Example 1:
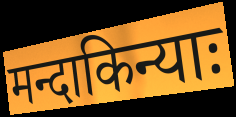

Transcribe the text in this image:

मन्दाकिन्याः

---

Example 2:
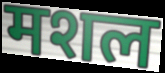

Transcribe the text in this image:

मशल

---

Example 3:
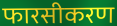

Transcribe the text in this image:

फारसीकरण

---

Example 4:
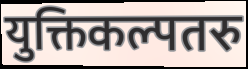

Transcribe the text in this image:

युक्तिकल्पतरु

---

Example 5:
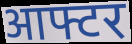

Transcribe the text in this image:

आफ्टर